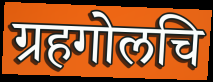
ग्रहगोलचि